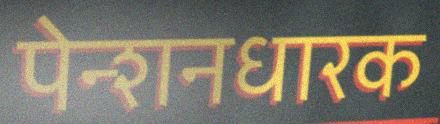
पेन्शनधारक